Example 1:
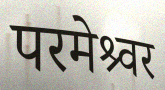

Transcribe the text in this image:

परमेश्र्वर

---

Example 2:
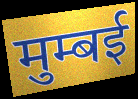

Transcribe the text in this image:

मुम्बई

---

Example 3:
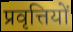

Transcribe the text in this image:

प्रवृत्तियों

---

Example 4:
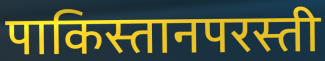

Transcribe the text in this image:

पाकिस्तानपरस्ती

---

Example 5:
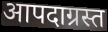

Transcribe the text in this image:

आपदाग्रस्त